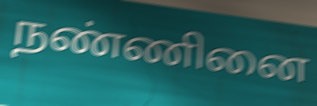
நண்ணினை